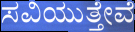
ಸವಿಯುತ್ತೇವೆ